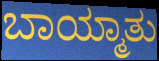
ಬಾಯ್ಮಾತು